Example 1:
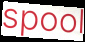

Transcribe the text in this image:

spool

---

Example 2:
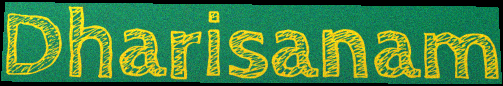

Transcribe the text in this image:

Dharisanam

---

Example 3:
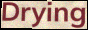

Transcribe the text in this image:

Drying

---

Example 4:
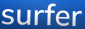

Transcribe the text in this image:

surfer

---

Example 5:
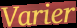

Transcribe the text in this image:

Varier